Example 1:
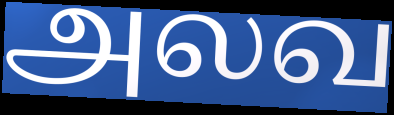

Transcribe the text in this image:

அலவ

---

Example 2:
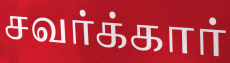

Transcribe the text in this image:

சவர்க்கார்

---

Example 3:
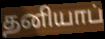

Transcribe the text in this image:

தனியாப்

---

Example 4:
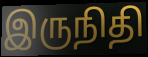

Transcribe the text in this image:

இருநிதி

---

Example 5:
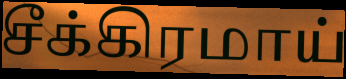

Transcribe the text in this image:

சீக்கிரமாய்